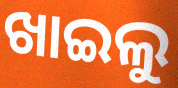
ଖାଇଲୁ